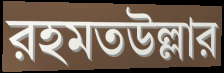
রহমতউল্লার